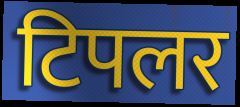
टिपलर